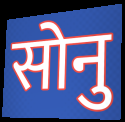
सोनु